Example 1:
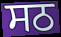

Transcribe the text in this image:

ਸਠ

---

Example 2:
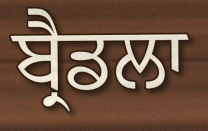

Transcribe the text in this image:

ਬ੍ਰੈਡਲਾ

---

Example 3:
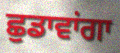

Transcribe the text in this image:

ਛੁਡਾਵਾਂਗਾ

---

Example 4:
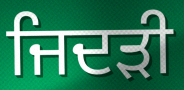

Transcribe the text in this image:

ਜਿਦੜੀ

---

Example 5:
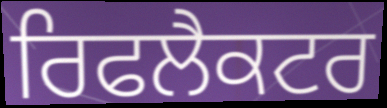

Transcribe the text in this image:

ਰਿਫਲੈਕਟਰ